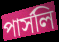
পার্সলি